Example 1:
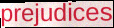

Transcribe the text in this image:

prejudices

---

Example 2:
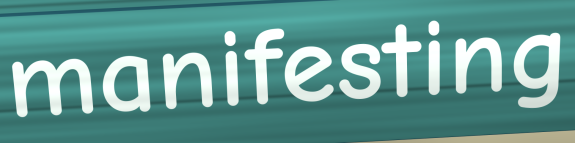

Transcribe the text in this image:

manifesting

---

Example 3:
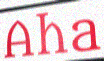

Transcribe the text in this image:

Aha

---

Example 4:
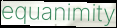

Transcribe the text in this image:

equanimity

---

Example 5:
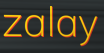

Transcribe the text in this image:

zalay